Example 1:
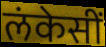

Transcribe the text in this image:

लंकेसीं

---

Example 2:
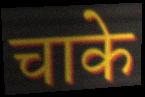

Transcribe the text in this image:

चाके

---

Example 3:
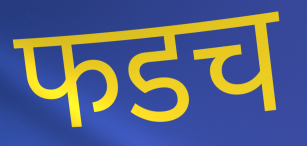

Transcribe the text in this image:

फडच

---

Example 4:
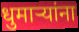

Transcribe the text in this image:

धुमाऱ्यांना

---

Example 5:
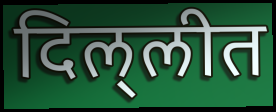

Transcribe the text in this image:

दिल्लीत